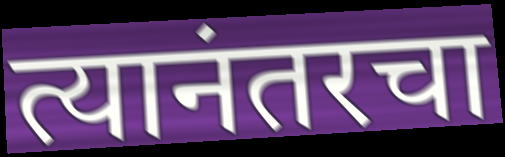
त्यानंतरचा